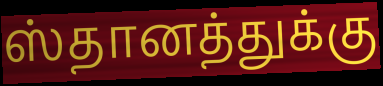
ஸ்தானத்துக்கு